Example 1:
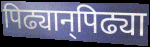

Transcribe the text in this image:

पिढ्यान्‌पिढ्या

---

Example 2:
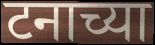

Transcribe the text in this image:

टनाच्या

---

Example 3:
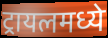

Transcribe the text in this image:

ट्रायलमध्ये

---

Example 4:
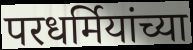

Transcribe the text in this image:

परधर्मियांच्या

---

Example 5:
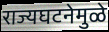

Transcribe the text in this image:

राज्यघटनेमुळे